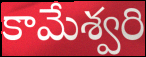
కామేశ్వరి